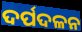
ଦର୍ପଦଳନ